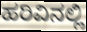
ಹರಿವಿನಲ್ಲಿ